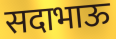
सदाभाऊ